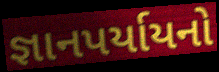
જ્ઞાનપર્યાયનો